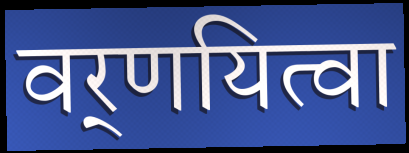
वर्णयित्वा